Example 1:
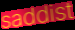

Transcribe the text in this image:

saddist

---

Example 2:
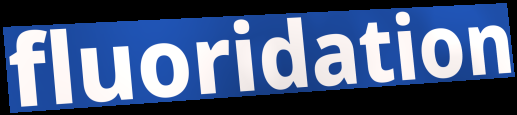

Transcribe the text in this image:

fluoridation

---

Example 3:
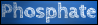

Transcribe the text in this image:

Phosphate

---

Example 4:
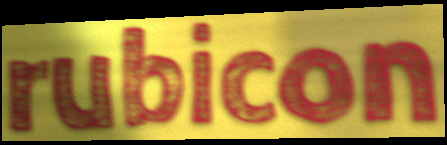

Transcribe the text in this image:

rubicon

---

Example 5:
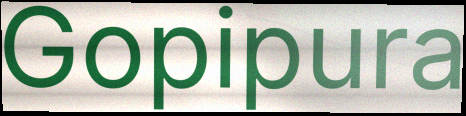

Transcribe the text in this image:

Gopipura